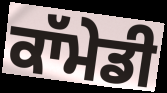
ਕਾੱਮੇਡੀ